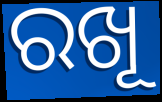
ରଖୂ